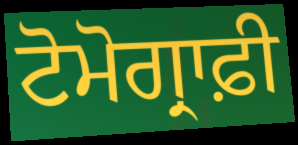
ਟੋਮੋਗ੍ਰਾਫ਼ੀ